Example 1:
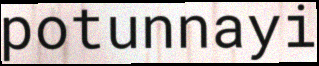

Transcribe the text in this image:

potunnayi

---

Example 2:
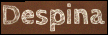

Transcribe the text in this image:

Despina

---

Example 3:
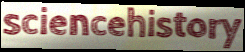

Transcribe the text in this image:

sciencehistory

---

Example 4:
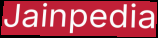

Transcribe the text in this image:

Jainpedia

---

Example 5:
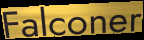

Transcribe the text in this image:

Falconer